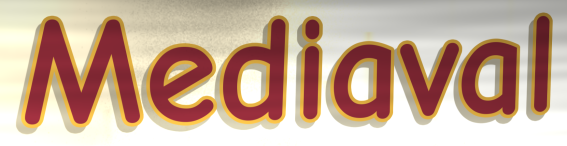
Mediaval